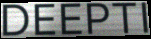
DEEPTI